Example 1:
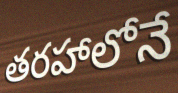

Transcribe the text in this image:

తరహాలోనే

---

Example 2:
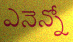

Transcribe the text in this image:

ఎనెన్నో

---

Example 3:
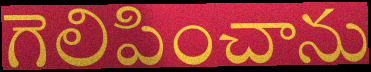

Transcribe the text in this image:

గెలిపించాను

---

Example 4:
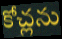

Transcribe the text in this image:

కోచ్లను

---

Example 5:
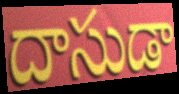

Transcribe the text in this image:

దాసుడా